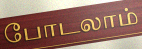
போடலாம்